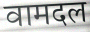
वामदल